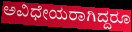
ಅವಿಧೇಯರಾಗಿದ್ದರೂ